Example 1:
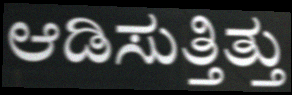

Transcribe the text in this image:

ಆಡಿಸುತ್ತಿತ್ತು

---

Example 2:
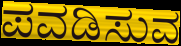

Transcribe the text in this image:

ಪವಡಿಸುವ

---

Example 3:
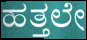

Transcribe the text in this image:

ಹತ್ತಲೇ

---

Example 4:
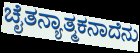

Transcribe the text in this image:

ಚೈತನ್ಯಾತ್ಮಕನಾದೆನು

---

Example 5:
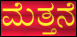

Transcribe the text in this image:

ಮೆತ್ತನೆ